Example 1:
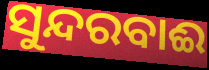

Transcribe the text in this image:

ସୁନ୍ଦରବାଈ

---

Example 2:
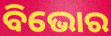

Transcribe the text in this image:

ବିଭୋର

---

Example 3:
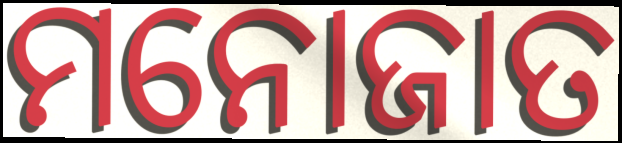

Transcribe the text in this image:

ମନୋଜାତ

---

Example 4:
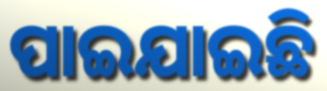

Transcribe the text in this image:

ପାଇଯାଇଛି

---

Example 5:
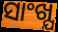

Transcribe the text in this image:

ସାଂଖ୍ଯ